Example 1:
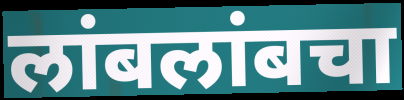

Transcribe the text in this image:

लांबलांबचा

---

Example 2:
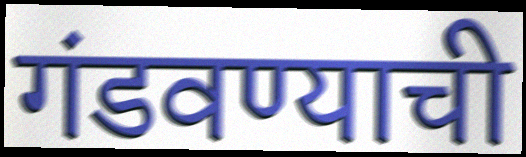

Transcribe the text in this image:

गंडवण्याची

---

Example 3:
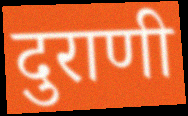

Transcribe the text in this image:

दुराणी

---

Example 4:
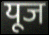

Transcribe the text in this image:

यूज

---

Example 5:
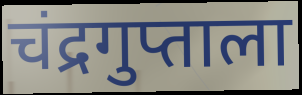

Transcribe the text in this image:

चंद्रगुप्ताला